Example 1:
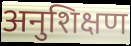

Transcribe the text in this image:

अनुशिक्षण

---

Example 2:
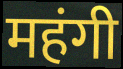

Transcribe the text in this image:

महंगी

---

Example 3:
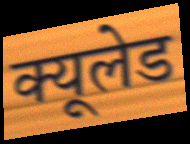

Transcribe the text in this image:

क्यूलेड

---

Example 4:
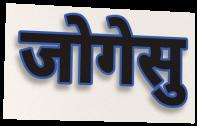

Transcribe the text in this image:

जोगेसु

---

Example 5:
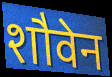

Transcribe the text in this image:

शौवेन